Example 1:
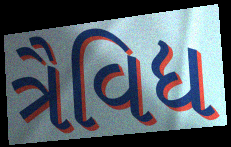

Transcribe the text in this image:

ત્રૈવિદ્ય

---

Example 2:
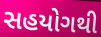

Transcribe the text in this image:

સહયોગથી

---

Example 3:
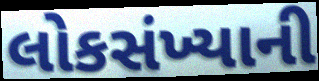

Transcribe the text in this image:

લોકસંખ્યાની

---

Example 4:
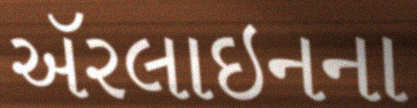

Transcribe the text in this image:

ઍરલાઇનના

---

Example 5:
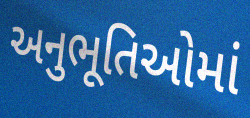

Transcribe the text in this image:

અનુભૂતિઓમાં